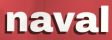
naval